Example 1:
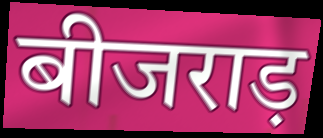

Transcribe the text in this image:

बीजराड़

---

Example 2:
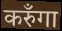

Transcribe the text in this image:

करुँगा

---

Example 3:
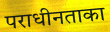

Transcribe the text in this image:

पराधीनताका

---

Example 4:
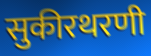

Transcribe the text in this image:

सुकीरथरणी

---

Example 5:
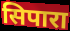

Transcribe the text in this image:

सिपारा